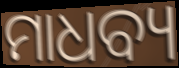
ମାଧବ୍ୟ